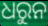
ଧରୁନ